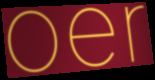
oer